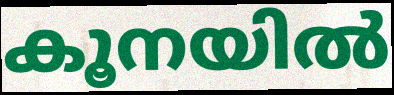
കൂനയിൽ